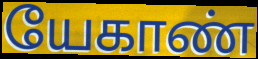
யேகாண்